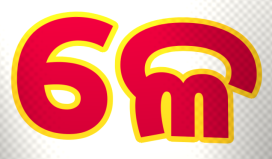
ଳେ